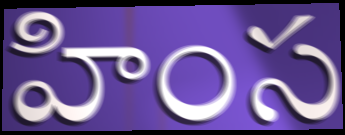
హింస